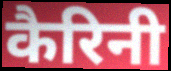
कैरिनी